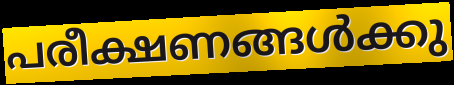
പരീക്ഷണങ്ങൾക്കു